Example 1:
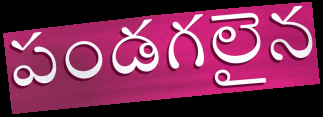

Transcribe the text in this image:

పండగలైన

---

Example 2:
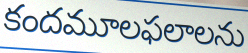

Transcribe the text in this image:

కందమూలఫలాలను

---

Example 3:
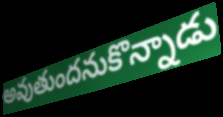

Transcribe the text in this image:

అవుతుందనుకొన్నాడు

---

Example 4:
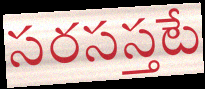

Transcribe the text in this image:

సరసస్తటే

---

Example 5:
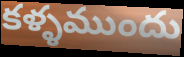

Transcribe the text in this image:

కళ్ళముందు